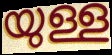
യുള്ള